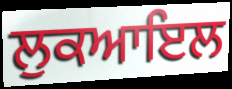
ਲੁਕਆਇਲ